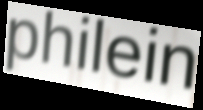
philein